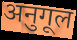
अनुगूल